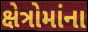
ક્ષેત્રોમાંના